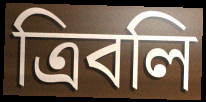
ত্রিবলি